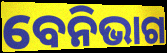
ବେନିଭାଗ